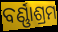
ବର୍ଣ୍ଣାଶ୍ରମ